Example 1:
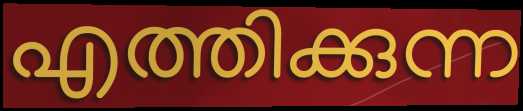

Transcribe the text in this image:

എത്തിക്കുന്ന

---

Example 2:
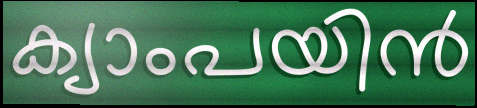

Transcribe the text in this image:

ക്യാംപയിൻ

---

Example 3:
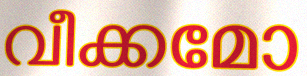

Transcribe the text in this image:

വീക്കമോ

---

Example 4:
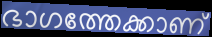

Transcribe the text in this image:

ഭാഗത്തേക്കാണ്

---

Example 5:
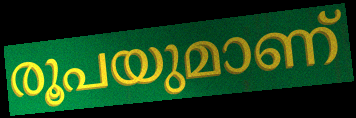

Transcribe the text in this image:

രൂപയുമാണ്